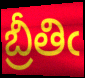
బ్రీతిఁ